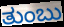
ತುಂಬು